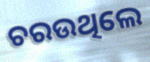
ଚରଉଥିଲେ